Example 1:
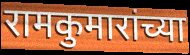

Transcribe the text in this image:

रामकुमारांच्या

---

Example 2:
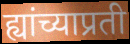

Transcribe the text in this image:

ह्यांच्याप्रती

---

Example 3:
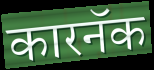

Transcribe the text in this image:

कारनॅक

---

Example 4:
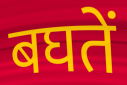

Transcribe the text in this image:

बघतें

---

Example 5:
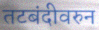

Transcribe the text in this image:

तटबंदीवरुन